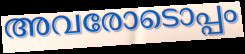
അവരോടൊപ്പം